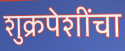
शुक्रपेशींचा